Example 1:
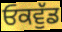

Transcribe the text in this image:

ਓਕਵੁੱਡ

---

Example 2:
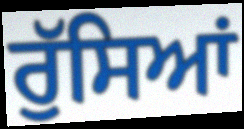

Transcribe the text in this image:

ਰੁੱਸਿਆਂ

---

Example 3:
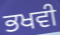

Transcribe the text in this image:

ਭਖਵੀ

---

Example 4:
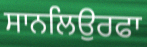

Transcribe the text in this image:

ਸਾਨਲਿਉਰਫਾ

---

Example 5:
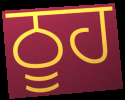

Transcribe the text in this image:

ਠੂਹ